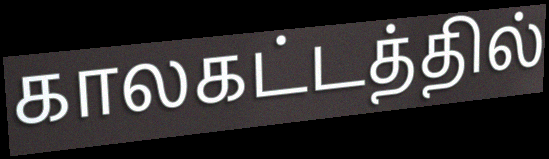
காலகட்டத்தில்